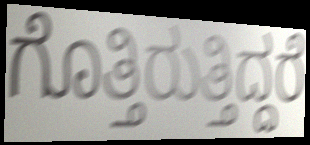
ಗೊತ್ತಿರುತ್ತಿದ್ದರೆ